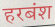
हरबंश